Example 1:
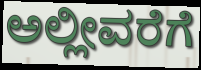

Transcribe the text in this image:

ಅಲ್ಲೀವರೆಗೆ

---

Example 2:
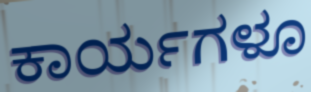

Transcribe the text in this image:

ಕಾರ್ಯಗಳೂ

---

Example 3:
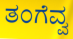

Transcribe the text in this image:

ತಂಗೆವ್ವ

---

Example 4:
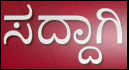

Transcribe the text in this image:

ಸದ್ದಾಗಿ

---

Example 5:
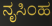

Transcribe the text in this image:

ನೃಸಿಂಹ